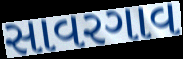
સાવરગાવ